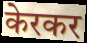
केरकर